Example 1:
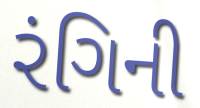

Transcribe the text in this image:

રંગિની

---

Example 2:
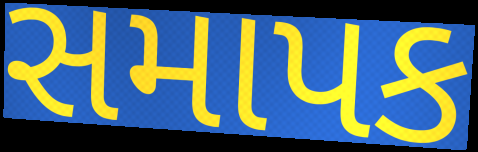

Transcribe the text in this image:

સમાપક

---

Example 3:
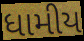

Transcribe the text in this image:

ધામીય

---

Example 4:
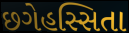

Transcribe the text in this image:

છગેહસ્સિતા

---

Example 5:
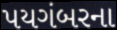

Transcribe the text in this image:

પયગંબરના